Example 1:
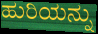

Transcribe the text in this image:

ಹುರಿಯನ್ನು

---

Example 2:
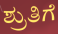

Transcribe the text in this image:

ಶ್ರುತಿಗೆ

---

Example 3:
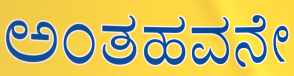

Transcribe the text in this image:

ಅಂತಹವನೇ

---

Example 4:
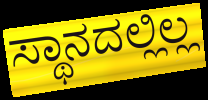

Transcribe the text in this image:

ಸ್ಥಾನದಲ್ಲಿಲ್ಲ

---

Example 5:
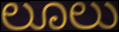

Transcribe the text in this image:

ಲೂಲು